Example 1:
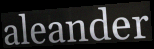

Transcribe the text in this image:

aleander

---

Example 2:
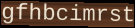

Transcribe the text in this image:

gfhbcimrst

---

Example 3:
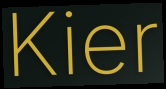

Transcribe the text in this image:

Kier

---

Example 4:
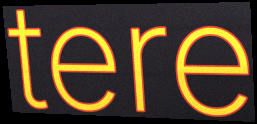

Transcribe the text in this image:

tere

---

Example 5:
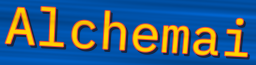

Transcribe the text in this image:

Alchemai